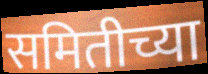
समितीच्या